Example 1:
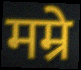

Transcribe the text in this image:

मम्रे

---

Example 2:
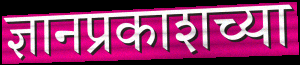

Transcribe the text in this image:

ज्ञानप्रकाशच्या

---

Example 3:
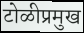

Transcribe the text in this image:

टोळीप्रमुख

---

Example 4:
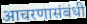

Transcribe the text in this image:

आचरणासंबंधी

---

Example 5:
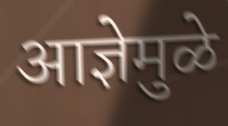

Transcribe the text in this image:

आज्ञेमुळे